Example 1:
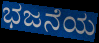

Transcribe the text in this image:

ಭಜನೆಯ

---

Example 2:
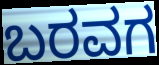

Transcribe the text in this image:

ಬರವಗ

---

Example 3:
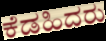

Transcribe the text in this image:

ಕೆಡಹಿದರು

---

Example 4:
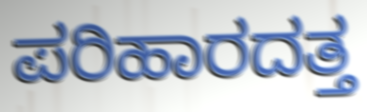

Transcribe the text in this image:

ಪರಿಹಾರದತ್ತ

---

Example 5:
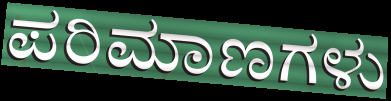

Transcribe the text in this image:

ಪರಿಮಾಣಗಳು